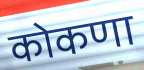
कोकणा